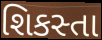
શિકસ્તા